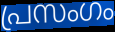
പ്രസംഗം